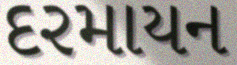
દરમાયન